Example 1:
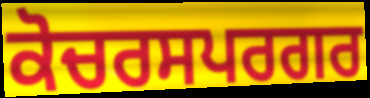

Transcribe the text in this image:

ਕੋਚਰਸਪਰਗਰ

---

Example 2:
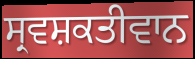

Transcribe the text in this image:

ਸ੍ਰਵਸ਼ਕਤੀਵਾਨ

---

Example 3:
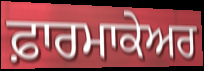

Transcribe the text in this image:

ਫ਼ਾਰਮਾਕੇਅਰ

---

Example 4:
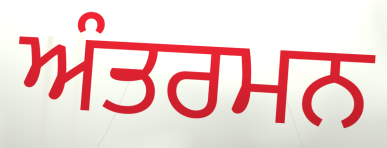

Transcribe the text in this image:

ਅੰਤਰਮਨ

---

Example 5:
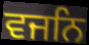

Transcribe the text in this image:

ਵਜਨਿ